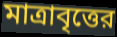
মাত্রাবৃত্তের